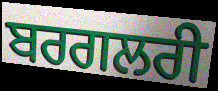
ਬਰਗਲਰੀ